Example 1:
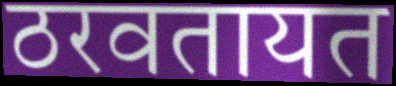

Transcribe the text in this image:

ठरवतायत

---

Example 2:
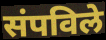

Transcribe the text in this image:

संपविले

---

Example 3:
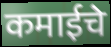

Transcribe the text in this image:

कमाईचे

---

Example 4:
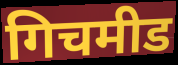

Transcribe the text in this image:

गिचमीड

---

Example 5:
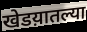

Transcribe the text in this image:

खेडय़ातल्या